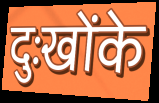
दुःखोंके